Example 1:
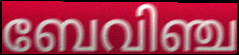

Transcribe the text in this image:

ബേവിഞ്ച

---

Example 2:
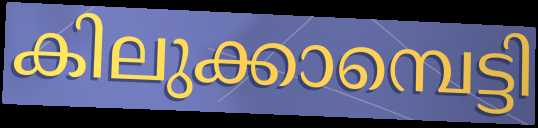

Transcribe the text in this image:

കിലുക്കാമ്പെട്ടി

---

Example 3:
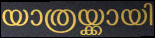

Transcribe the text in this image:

യാത്രയ്ക്കായി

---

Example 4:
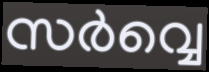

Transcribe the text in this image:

സർവ്വെ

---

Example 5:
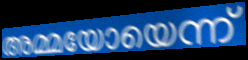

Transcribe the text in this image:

അമ്മയോയെന്ന്